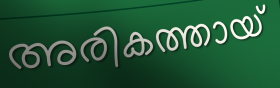
അരികത്തായ്